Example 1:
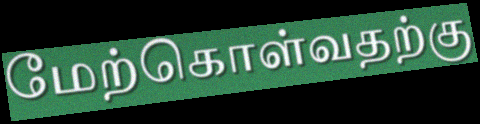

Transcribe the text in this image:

மேற்கொள்வதற்கு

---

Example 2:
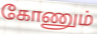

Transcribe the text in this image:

கோணும்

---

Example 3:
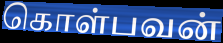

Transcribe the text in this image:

கொள்பவன்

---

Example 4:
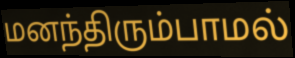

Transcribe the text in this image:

மனந்திரும்பாமல்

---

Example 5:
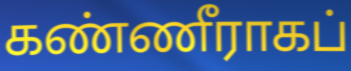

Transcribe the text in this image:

கண்ணீராகப்